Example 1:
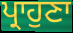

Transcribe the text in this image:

ਪ੍ਰਾਹੁਣਾ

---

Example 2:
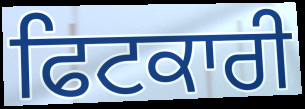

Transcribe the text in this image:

ਫਿਟਕਾਰੀ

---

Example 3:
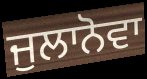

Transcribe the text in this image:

ਜੁਲਾਨੋਵਾ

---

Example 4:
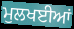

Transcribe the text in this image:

ਮੁਲਖਈਆਂ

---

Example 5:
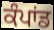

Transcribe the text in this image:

ਕੰਪਾਂਡ